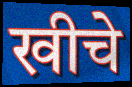
खीचे